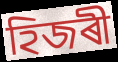
হিজৰী